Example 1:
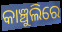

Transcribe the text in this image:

କାଞ୍ଚୁଲିରେ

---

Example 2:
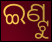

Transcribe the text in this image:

ଇଣ୍ଟୁ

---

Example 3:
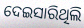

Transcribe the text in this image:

ଦେଇସାରିଥିଲି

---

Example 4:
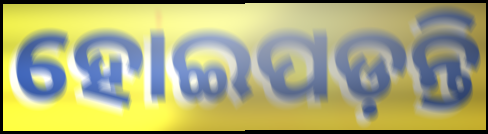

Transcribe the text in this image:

ହୋଇପଡ଼ନ୍ତି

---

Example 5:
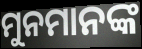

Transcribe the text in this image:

ମୁନମାନଙ୍କ